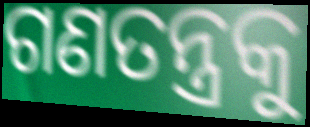
ଗଣତନ୍ତ୍ରକୁ